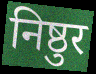
निष्ठुर